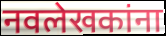
नवलेखकांना